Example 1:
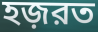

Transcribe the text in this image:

হজ়রত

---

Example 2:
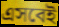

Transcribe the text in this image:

এসবেই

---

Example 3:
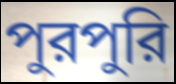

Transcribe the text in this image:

পুরপুরি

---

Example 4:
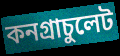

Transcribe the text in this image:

কনগ্রাচুলেট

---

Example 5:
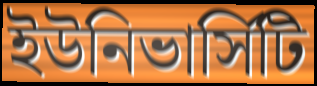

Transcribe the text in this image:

ইউনিভার্সিটি